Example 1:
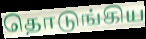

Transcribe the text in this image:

தொடுங்கிய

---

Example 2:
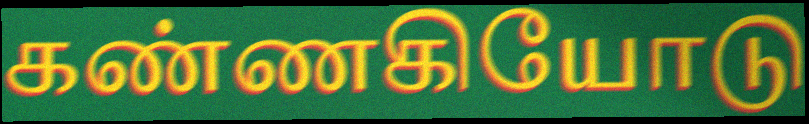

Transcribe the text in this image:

கண்ணகியோடு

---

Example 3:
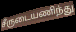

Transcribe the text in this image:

சீருடையணிந்து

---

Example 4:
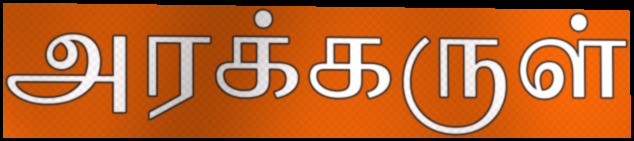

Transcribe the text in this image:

அரக்கருள்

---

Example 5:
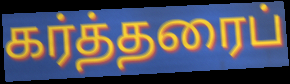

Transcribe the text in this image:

கர்த்தரைப்